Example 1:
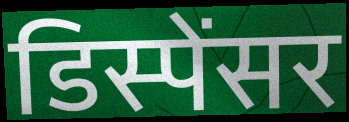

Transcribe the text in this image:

डिस्पेंसर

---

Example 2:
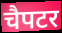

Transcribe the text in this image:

चैपटर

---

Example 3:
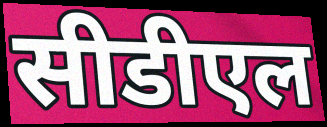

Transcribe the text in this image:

सीडीएल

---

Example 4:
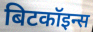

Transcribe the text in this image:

बिटकॉइन्स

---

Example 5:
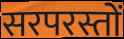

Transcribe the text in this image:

सरपरस्तों